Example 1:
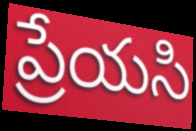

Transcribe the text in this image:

ప్రేయసి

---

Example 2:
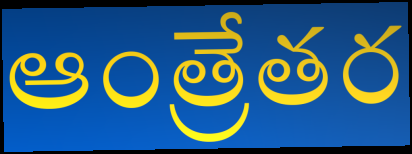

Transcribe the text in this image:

ఆంత్రేతర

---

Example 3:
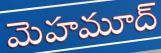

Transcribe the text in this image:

మెహమూద్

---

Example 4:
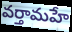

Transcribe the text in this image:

వర్తామహే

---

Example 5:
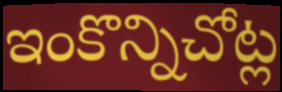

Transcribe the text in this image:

ఇంకొన్నిచోట్ల